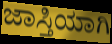
ಜಾಸ್ತಿಯಾಗಿ